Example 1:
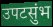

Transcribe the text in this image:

उपटसुंभ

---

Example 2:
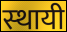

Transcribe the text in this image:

स्‍थायी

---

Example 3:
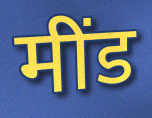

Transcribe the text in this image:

मींड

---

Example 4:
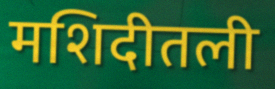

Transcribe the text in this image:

मशिदीतली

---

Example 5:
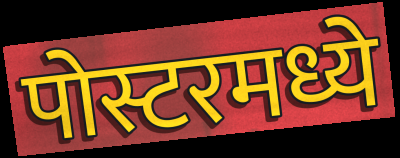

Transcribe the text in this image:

पोस्टरमध्ये